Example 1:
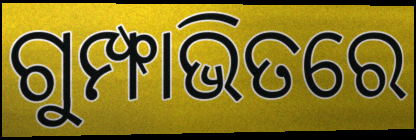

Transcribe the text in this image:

ଗୁମ୍ଫାଭିତରେ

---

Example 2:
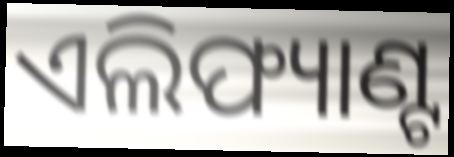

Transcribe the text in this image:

ଏଲିଫ୍ୟାଣ୍ଟ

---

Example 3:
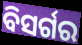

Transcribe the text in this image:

ବିସର୍ଗର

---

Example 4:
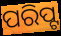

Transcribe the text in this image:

ପରିପ୍ଟ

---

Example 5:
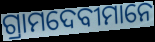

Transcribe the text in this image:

ଗ୍ରାମଦେବୀମାନେ